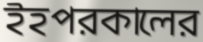
ইহপরকালের